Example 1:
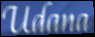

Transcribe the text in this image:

Udana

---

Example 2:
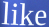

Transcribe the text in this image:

like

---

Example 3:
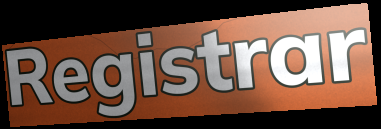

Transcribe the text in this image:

Registrar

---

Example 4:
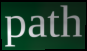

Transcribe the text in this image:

path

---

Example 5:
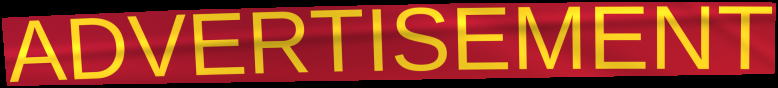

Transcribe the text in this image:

ADVERTISEMENT